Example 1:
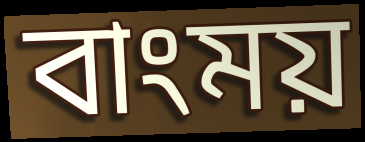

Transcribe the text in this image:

বাংময়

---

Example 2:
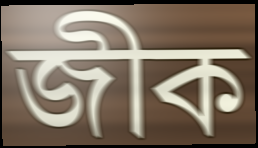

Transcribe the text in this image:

জীক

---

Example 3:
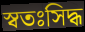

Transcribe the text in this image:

স্বতঃসিদ্ধ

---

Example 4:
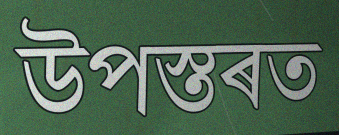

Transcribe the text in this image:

উপস্তৰত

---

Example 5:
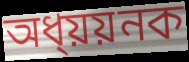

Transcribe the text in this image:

অধ্য়য়নক